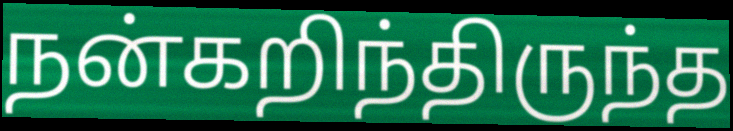
நன்கறிந்திருந்த